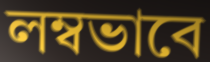
লম্বভাবে